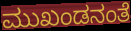
ಮುಖಂಡನಂತೆ